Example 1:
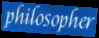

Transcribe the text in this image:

philosopher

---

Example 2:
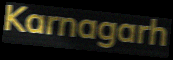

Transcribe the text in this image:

Karnagarh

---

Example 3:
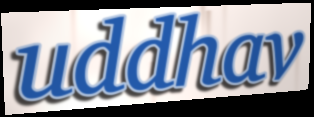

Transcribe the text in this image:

uddhav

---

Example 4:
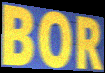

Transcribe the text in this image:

BOR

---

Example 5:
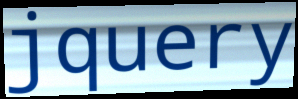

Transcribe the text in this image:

jquery